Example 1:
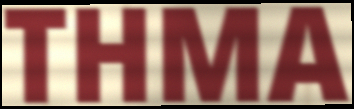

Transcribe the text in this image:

THMA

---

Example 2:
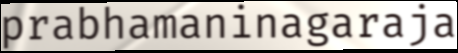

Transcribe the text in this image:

prabhamaninagaraja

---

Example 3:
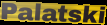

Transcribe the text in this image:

Palatski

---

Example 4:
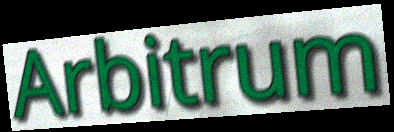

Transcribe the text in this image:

Arbitrum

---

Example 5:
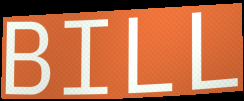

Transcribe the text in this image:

BILL